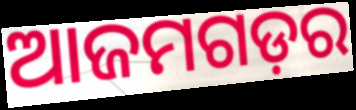
ଆଜମଗଡ଼ର